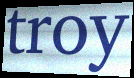
troy